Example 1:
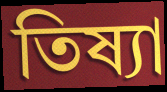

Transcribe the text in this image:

তিষ্যা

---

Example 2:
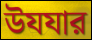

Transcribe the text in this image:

উযযার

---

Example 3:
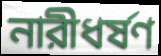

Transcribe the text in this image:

নারীধর্ষণ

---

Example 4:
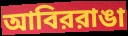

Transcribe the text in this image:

আবিররাঙা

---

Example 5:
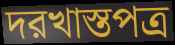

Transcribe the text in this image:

দরখাস্তপত্র